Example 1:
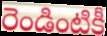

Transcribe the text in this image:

రెండింటికీ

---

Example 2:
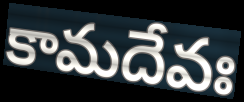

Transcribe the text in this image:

కామదేవః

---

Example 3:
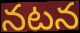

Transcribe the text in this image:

నటన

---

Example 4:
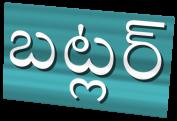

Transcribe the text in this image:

బట్లర్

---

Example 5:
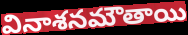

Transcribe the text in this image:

వినాశనమౌతాయి